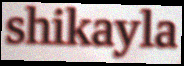
shikayla